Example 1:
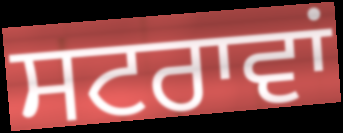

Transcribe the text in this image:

ਸਟਰਾਵਾਂ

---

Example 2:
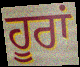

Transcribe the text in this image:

ਹੂਰਾਂ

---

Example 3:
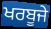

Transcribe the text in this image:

ਖਰਬੂਜੇ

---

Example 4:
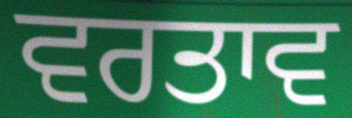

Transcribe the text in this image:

ਵਰਤਾਵ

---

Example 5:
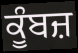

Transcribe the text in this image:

ਕੂੰਬਜ਼